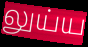
லுய்ய